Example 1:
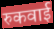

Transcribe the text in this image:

रुकवाई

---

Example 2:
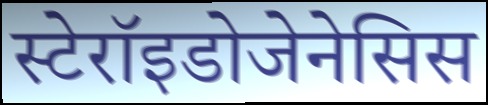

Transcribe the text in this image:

स्टेरॉइडोजेनेसिस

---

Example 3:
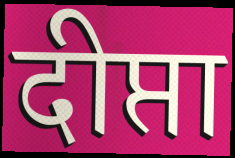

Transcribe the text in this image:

दीप्ता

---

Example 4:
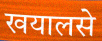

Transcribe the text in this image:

खयालसे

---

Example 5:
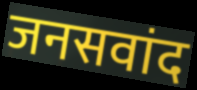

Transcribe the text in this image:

जनसवांद